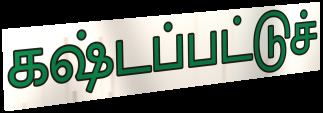
கஷ்டப்பட்டுச்